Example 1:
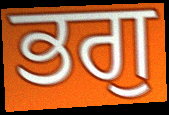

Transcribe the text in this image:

ਭਗੁ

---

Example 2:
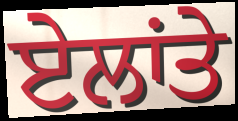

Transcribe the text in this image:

ਏਲਾਂਤੇ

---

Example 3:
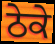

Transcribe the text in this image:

ਠੇਕੇ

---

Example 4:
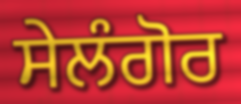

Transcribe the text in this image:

ਸੇਲੰਗੋਰ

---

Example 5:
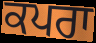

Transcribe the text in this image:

ਕਪਰਾ